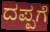
ದಪ್ಪಗೆ